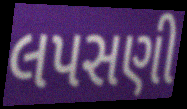
લપસણી